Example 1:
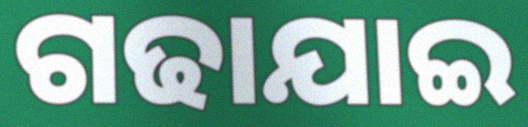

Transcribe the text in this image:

ଗଢାଯାଇ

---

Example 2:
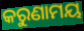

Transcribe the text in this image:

କରୁଣାମୟ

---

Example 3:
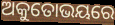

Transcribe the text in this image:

ଅକୁତୋଭୟରେ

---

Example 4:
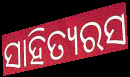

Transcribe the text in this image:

ସାହିତ୍ୟରସ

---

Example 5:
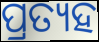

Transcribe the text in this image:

ପ୍ରତ୍ୟହ